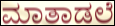
ಮಾತಾಡಲೆ